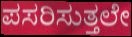
ಪಸರಿಸುತ್ತಲೇ